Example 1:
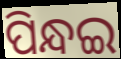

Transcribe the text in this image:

ପିନ୍ଧଇ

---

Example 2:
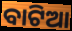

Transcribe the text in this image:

ବାଟିଆ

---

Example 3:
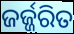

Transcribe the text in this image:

ଜର୍ଜ୍ଜରିତ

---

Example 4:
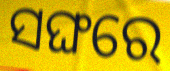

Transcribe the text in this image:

ସଙ୍ଘରେ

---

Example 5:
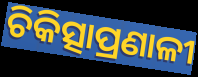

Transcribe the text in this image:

ଚିକିତ୍ସାପ୍ରଣାଳୀ